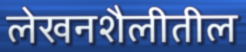
लेखनशैलीतील